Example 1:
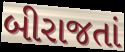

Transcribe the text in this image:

બીરાજતાં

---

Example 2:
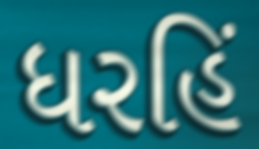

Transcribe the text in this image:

ધરહિં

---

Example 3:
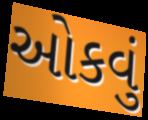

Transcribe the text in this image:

ઓકવું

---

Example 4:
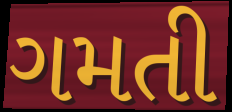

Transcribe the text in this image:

ગમતી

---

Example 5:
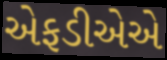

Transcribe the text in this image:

એફડીએએ